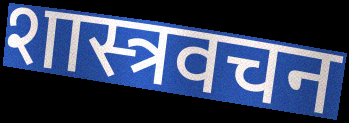
शास्त्रवचन